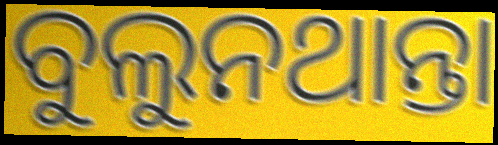
ବୁଲୁନଥାନ୍ତା